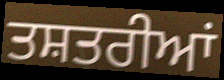
ਤਸ਼ਤਰੀਆਂ